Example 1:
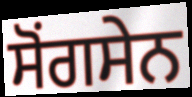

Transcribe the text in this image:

ਸੋਂਗਸੇਨ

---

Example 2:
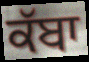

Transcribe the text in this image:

ਕੱਬਾ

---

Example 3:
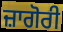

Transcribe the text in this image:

ਜ਼ਾਗੋਰੀ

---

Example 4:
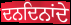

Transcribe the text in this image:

ਦਨਦਿਨਾਂਦੇ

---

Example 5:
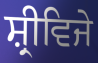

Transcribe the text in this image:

ਸ਼੍ਰੀਵਿਜੇ